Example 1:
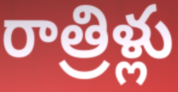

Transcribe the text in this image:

రాత్రిళ్లు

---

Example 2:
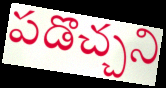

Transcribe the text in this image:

పడొచ్చని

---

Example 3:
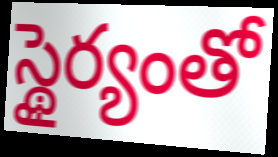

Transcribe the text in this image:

స్థైర్యంతో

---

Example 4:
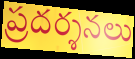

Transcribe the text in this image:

ప్రదర్శనలు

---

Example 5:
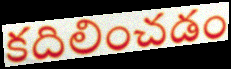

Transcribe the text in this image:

కదిలించడం